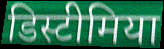
डिस्टीमिया